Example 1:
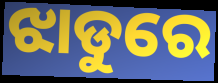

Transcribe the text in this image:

ଝାଡୁରେ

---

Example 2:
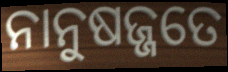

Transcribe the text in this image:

ନାନୁଷଜ୍ଜତେ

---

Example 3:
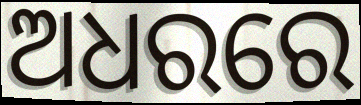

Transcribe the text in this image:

ଅଧରରେ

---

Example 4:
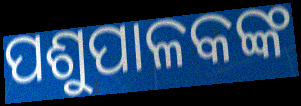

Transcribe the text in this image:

ପଶୁପାଳକଙ୍କ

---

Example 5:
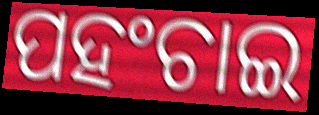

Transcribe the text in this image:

ପହଂଚାଇ